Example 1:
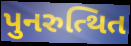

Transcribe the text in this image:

પુનરુત્થિત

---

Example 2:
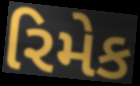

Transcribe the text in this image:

રિમેક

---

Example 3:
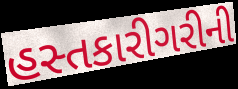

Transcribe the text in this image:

હસ્તકારીગરીની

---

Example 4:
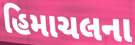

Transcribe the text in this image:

હિમાચલના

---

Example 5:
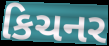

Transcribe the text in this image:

કિચનર